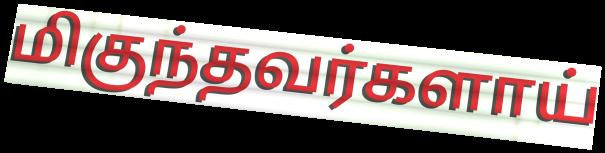
மிகுந்தவர்களாய்